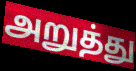
அறுத்து